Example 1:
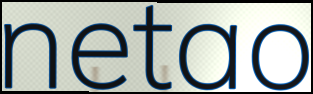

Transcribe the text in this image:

netao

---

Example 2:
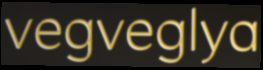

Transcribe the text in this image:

vegveglya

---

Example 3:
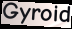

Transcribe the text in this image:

Gyroid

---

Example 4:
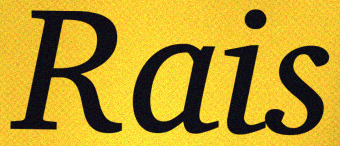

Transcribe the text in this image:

Rais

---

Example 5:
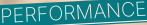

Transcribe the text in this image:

PERFORMANCE